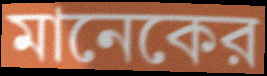
মানেকের